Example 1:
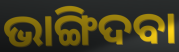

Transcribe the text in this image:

ଭାଙ୍ଗିଦବା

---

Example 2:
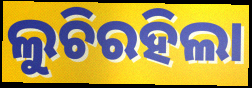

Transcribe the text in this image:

ଲୁଚିରହିଲା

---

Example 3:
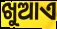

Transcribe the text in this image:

ଖୁଆଏ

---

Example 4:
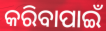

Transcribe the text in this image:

କରିବାପାଇଁ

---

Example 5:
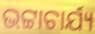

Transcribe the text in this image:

ଭଟ୍ଟାଚାର୍ଯ୍ୟ